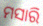
ମସାରି